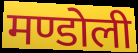
मण्डोली